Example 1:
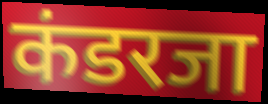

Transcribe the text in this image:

कंडरजा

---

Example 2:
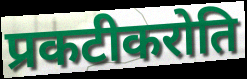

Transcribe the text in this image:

प्रकटीकरोति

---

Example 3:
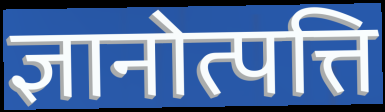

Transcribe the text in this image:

ज्ञानोत्पत्ति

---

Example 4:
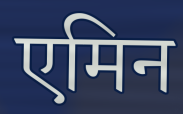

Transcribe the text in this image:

एमिन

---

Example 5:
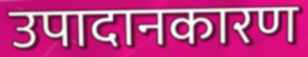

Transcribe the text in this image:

उपादानकारण